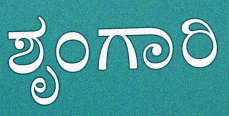
ಶೃಂಗಾರಿ